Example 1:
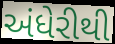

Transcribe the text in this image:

અંધેરીથી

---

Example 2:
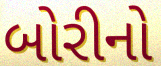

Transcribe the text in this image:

બોરીનો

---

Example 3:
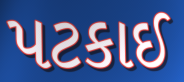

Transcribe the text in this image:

પટકાઈ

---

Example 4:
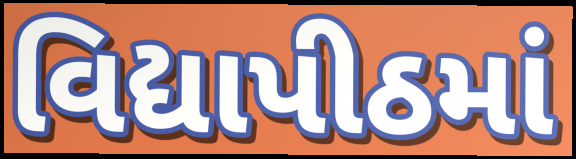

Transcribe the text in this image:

વિદ્યાપીઠમાં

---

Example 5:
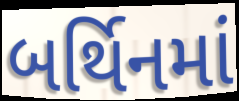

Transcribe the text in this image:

બર્થિનમાં